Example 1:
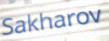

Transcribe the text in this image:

Sakharov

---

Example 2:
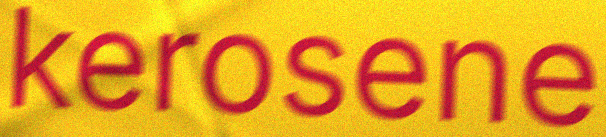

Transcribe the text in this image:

kerosene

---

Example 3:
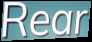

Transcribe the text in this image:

Rear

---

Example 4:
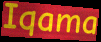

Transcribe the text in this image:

Iqama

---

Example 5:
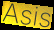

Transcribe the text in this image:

Asis